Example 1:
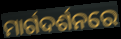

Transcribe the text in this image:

ମାର୍ଗଦର୍ଶନରେ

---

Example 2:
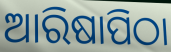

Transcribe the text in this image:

ଆରିଷାପିଠା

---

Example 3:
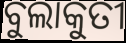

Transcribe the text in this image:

ବୁଲାକୁତୀ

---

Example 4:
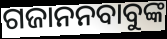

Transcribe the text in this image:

ଗଜାନନବାବୁଙ୍କ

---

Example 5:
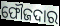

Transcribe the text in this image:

ଫୌଜଦାର